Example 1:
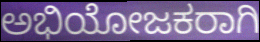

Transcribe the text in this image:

ಅಭಿಯೋಜಕರಾಗಿ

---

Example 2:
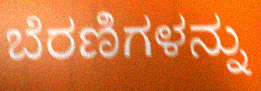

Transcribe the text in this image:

ಬೆರಣಿಗಳನ್ನು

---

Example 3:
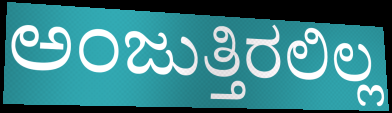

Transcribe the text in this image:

ಅಂಜುತ್ತಿರಲಿಲ್ಲ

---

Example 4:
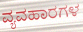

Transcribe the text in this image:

ವ್ಯವಹಾರಗಳ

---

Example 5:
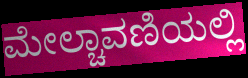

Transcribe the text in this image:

ಮೇಲ್ಚಾವಣಿಯಲ್ಲಿ